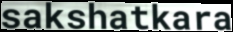
sakshatkara